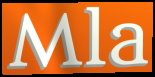
Mla